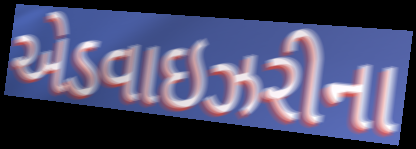
એડવાઇઝરીના